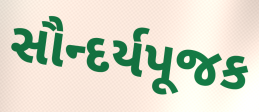
સૌન્દર્યપૂજક